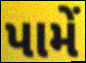
પામેં